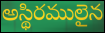
అస్థిరములైన